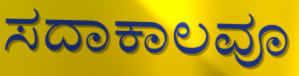
ಸದಾಕಾಲವೂ